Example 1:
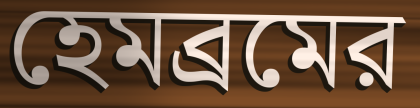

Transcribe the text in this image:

হেমব্রমের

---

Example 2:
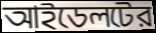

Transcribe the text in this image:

আইডেলটের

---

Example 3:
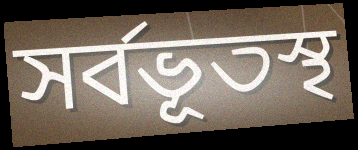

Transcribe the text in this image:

সর্বভূতস্থ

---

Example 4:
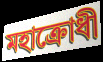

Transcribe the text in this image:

মহাক্রোধী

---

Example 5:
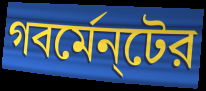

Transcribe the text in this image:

গবর্মেন্‌টের